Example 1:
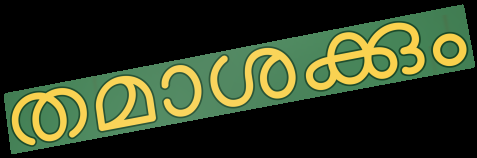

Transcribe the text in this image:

തമാശക്കും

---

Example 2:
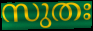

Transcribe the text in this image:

സുതഃ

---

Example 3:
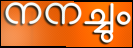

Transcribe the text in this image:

നനച്ചും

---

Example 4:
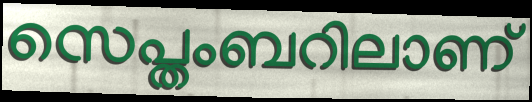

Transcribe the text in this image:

സെപ്തംബറിലാണ്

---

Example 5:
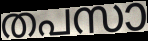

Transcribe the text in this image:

തപസാ